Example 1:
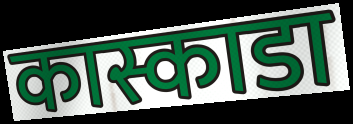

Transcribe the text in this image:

कास्काडा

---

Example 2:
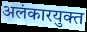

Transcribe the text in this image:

अलंकारयुक्त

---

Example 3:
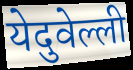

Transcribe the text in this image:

येदुवेल्ली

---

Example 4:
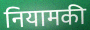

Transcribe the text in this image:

नियामकी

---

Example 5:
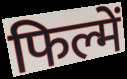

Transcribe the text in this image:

फिल्‍में